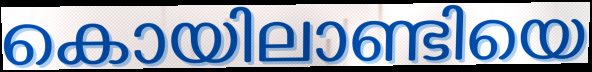
കൊയിലാണ്ടിയെ